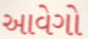
આવેગો